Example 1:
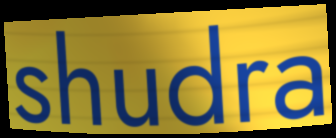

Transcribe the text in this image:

shudra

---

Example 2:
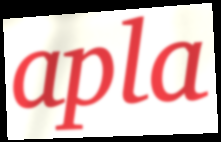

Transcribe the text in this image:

apla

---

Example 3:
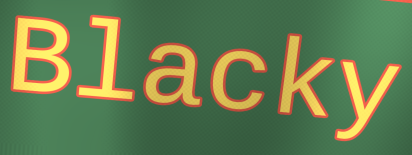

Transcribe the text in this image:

Blacky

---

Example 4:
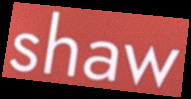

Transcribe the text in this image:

shaw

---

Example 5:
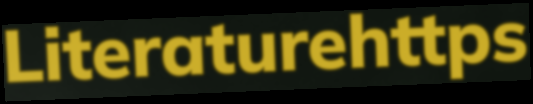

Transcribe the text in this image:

Literaturehttps